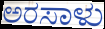
ಅರಸಾಳು